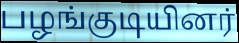
பழங்குடியினர்